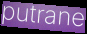
putrane